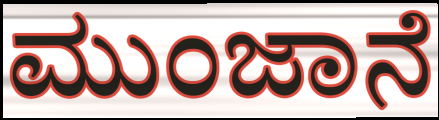
ಮುಂಜಾನೆ